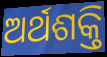
ଅର୍ଥଶକ୍ତି